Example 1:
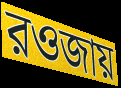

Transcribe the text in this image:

রওজায়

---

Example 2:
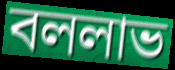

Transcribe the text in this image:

বললাভ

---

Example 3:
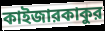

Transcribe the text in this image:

কাইজারকাকুর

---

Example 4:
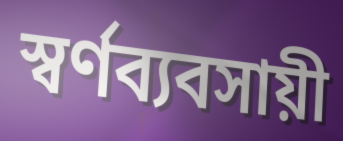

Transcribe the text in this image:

স্বর্ণব্যবসায়ী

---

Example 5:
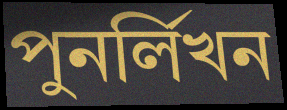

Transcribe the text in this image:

পুনর্লিখন